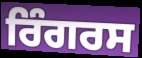
ਰਿੰਗਰਸ